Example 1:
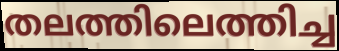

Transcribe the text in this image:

തലത്തിലെത്തിച്ച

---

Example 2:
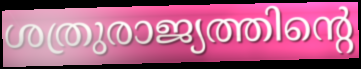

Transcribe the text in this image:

ശത്രുരാജ്യത്തിന്റെ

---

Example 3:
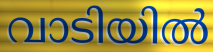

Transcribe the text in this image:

വാടിയിൽ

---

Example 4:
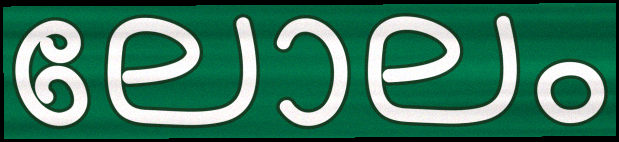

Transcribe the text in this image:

ലോലം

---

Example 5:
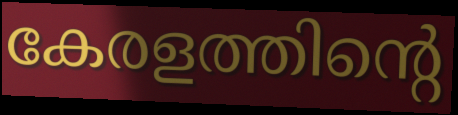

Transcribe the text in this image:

കേരളത്തിന്റെ